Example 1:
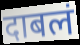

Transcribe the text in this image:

दाबलं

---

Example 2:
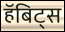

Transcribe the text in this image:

हॅबिट्स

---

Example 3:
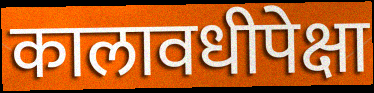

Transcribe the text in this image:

कालावधीपेक्षा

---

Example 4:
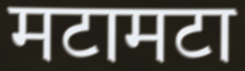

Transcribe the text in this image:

मटामटा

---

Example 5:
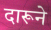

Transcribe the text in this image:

दारूने